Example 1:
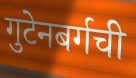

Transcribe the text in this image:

गुटेनबर्गची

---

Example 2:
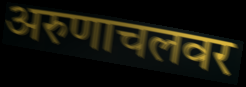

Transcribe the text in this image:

अरुणाचलवर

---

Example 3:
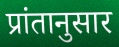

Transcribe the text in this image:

प्रांतानुसार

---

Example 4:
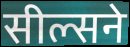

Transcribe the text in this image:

सील्सने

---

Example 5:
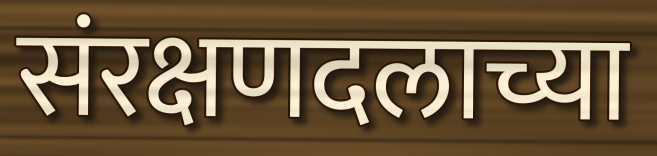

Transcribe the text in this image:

संरक्षणदलाच्या